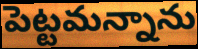
పెట్టమన్నాను